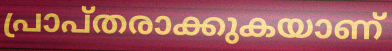
പ്രാപ്തരാക്കുകയാണ്